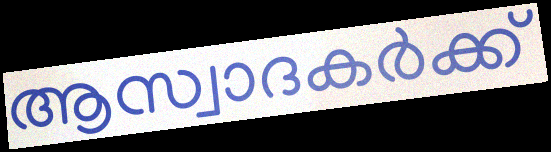
ആസ്വാദകർക്ക്